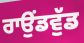
ਰਾਉਂਡਵੁੱਡ